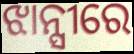
ଝାନ୍ସୀରେ